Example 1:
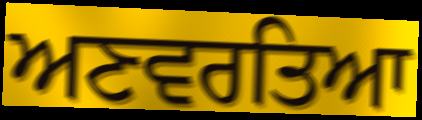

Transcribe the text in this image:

ਅਣਵਰਤਿਆ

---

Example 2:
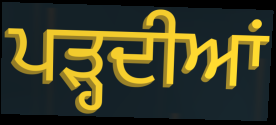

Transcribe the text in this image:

ਪੜ੍ਹਦੀਆਂ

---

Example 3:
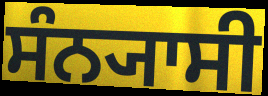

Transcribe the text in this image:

ਸੰਨ੍ਯਾਸੀ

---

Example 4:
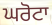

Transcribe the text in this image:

ਘਰੋਟਾ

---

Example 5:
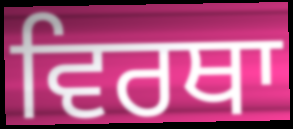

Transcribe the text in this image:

ਵਿਰਥਾ